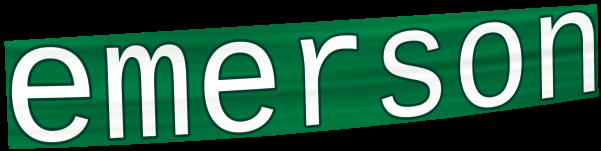
emerson